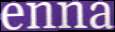
enna